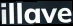
illave